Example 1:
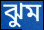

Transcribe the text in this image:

ঝুম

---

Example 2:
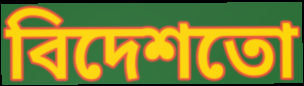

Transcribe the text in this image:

বিদেশতো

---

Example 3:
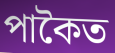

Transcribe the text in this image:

পাকৈত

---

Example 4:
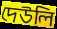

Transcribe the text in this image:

দেউলি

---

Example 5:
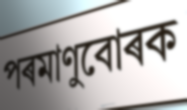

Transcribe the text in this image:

পৰমাণুবোৰক